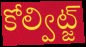
కోల్విట్జ్